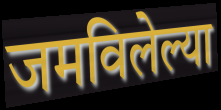
जमविलेल्या